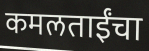
कमलताईंचा